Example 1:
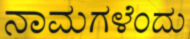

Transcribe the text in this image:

ನಾಮಗಳೆಂದು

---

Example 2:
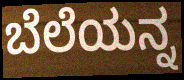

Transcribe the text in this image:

ಬೆಲೆಯನ್ನ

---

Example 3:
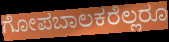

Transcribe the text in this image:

ಗೋಪಬಾಲಕರೆಲ್ಲರೂ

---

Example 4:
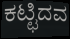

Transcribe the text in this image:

ಕಟ್ಟಿದವ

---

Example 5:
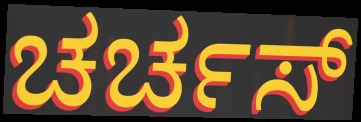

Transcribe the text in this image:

ಚರ್ಚಸ್